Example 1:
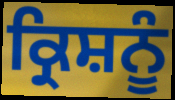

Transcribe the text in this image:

ਕ੍ਰਿਸ਼ਨੂੰ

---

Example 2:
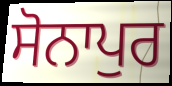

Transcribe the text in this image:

ਸੋਨਾਪੁਰ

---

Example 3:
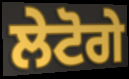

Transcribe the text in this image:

ਲੇਟੋਗੇ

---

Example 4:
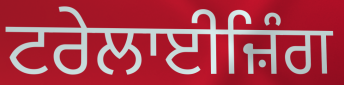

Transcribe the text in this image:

ਟਰੇਲਾਈਜ਼ਿੰਗ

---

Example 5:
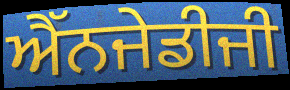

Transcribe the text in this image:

ਐੱਨਜੇਡੀਜੀ